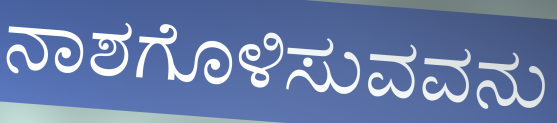
ನಾಶಗೊಳಿಸುವವನು